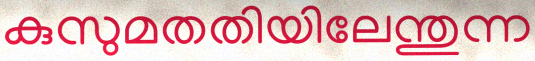
കുസുമതതിയിലേന്തുന്ന